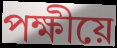
পক্ষীয়ে